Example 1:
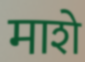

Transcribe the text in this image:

माशे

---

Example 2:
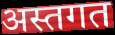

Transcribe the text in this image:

अस्तगत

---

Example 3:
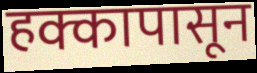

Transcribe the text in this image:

हक्कापासून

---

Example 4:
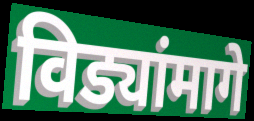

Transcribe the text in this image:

विड्यांमागे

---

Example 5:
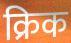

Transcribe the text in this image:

क्रिक